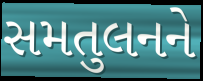
સમતુલનને